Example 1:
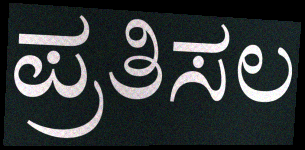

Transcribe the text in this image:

ಪ್ರತಿಸಲ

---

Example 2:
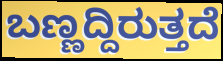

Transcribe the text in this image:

ಬಣ್ಣದ್ದಿರುತ್ತದೆ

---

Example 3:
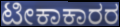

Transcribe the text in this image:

ಟೀಕಾಕಾರರ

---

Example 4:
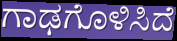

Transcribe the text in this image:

ಗಾಢಗೊಳಿಸಿದೆ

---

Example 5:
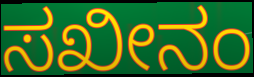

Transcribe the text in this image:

ಸಖೀನಂ